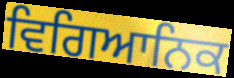
ਵਿਗਿਆਨਿਕ